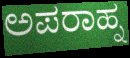
ಅಪರಾಹ್ನ